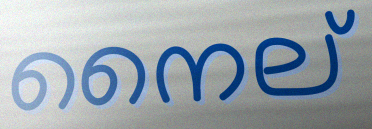
നൈല്